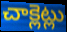
చాక్లెట్లు